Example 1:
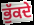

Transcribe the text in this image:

ਭੁੱਕਦੇ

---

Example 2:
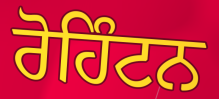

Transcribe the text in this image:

ਰੋਹਿੰਟਨ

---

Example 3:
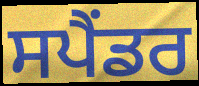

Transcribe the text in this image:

ਸਪੈਂਡਰ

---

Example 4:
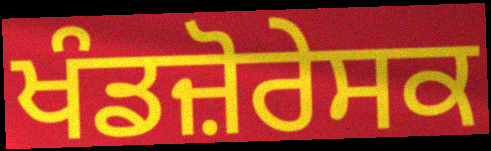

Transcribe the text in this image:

ਖੰਡਜ਼ੋਰੇਸਕ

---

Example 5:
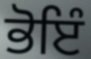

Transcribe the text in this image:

ਭੋਇੰ